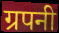
ग्रपनी